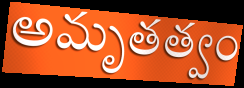
అమృతత్వం